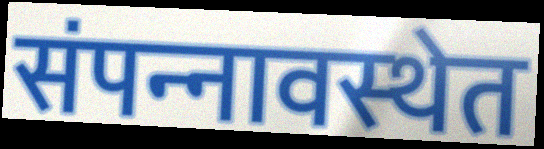
संपन्नावस्थेत